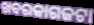
ଖବରକାଗଜଟା